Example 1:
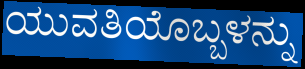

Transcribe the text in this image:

ಯುವತಿಯೊಬ್ಬಳನ್ನು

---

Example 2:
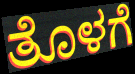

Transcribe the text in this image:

ತೊಳಗೆ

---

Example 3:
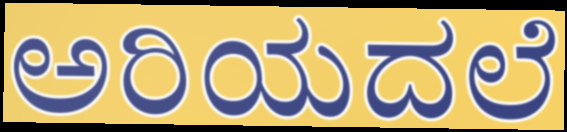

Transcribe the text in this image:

ಅರಿಯದಲೆ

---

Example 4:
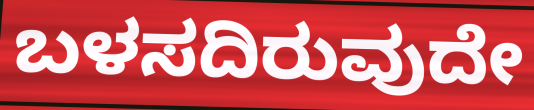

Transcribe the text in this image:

ಬಳಸದಿರುವುದೇ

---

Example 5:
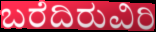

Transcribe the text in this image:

ಬರೆದಿರುವಿರಿ